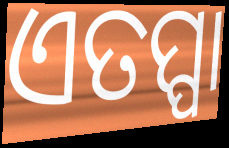
ଏତପ୍ପା